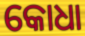
କୋଧା